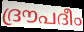
ദ്രൗപദീം